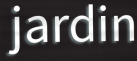
jardin